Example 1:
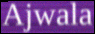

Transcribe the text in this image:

Ajwala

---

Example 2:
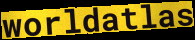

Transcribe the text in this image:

worldatlas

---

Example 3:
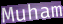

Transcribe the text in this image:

Muham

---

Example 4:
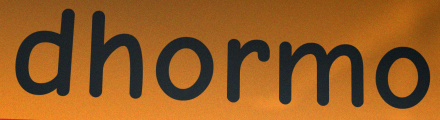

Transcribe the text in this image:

dhormo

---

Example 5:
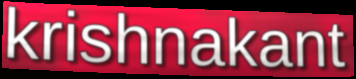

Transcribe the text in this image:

krishnakant